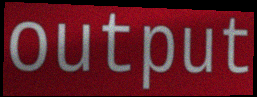
output